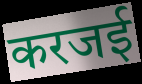
करजई